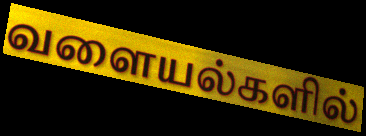
வளையல்களில்